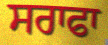
ਸਰਾਫਾ